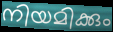
നിയമിക്കും